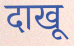
दाखू